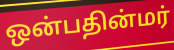
ஒன்பதின்மர்